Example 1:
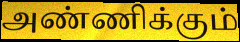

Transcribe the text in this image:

அண்ணிக்கும்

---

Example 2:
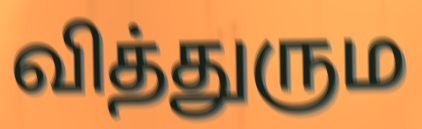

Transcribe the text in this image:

வித்துரும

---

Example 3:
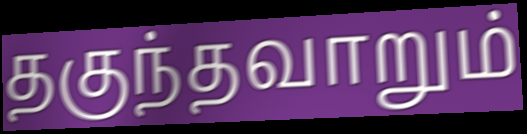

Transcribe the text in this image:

தகுந்தவாறும்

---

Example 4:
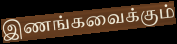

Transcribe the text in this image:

இணங்கவைக்கும்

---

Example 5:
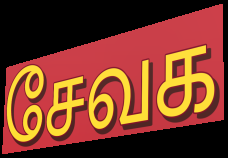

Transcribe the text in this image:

சேவக